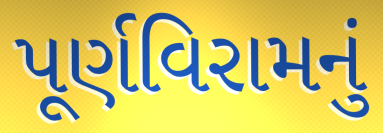
પૂર્ણવિરામનું